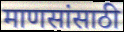
माणसांसाठी